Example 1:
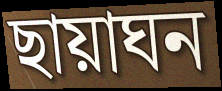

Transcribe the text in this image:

ছায়াঘন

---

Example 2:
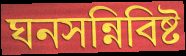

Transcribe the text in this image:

ঘনসন্নিবিষ্ট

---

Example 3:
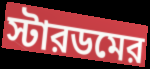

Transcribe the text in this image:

স্টারডমের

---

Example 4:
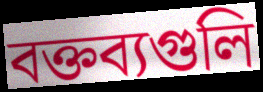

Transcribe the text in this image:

বক্তব্যগুলি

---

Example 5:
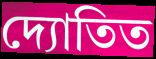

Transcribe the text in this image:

দ্যোতিত